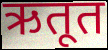
ऋतूत